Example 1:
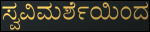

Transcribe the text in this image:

ಸ್ವವಿಮರ್ಶೆಯಿಂದ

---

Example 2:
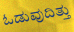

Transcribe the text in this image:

ಓಡುವುದಿತ್ತು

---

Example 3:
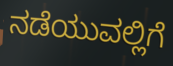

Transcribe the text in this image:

ನಡೆಯುವಲ್ಲಿಗೆ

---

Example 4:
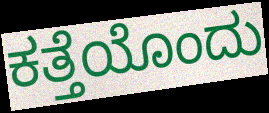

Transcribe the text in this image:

ಕತ್ತೆಯೊಂದು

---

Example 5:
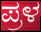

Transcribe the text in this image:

ಪ್ರಳ